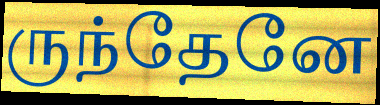
ருந்தேனே